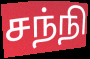
சந்நி